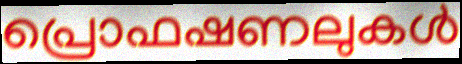
പ്രൊഫഷണലുകൾ